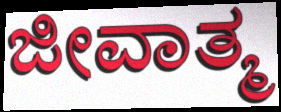
ಜೀವಾತ್ಮ